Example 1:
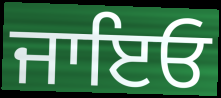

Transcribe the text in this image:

ਜਾਇਓ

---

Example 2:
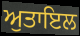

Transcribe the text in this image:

ਅੁਤਾਇਲ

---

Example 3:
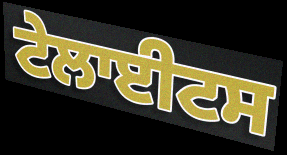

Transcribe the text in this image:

ਟੇਲਾਈਟਸ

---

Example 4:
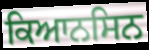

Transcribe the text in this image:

ਕਿਆਨਸਿਨ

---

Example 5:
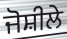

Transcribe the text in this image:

ਜੋਸ਼ੀਲੇ